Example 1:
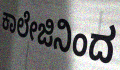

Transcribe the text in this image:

ಕಾಲೇಜಿನಿಂದ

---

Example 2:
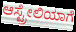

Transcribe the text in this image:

ಆಸ್ಟ್ರೇಲಿಯಾಗೆ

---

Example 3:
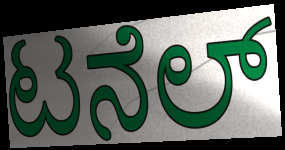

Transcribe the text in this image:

ಟನೆಲ್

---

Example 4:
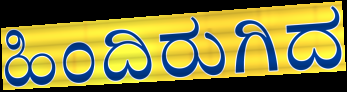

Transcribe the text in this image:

ಹಿಂದಿರುಗಿದ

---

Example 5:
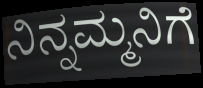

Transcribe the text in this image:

ನಿನ್ನಮ್ಮನಿಗೆ